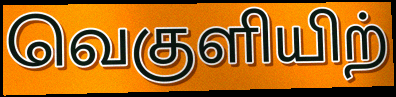
வெகுளியிற்